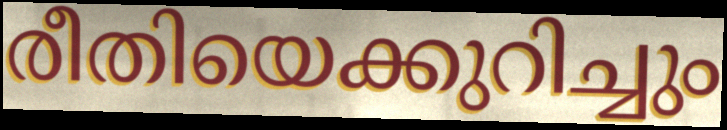
രീതിയെക്കുറിച്ചും